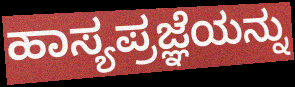
ಹಾಸ್ಯಪ್ರಜ್ಞೆಯನ್ನು